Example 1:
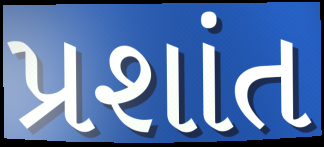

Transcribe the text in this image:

પ્રશાંત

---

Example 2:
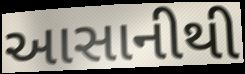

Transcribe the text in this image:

આસાનીથી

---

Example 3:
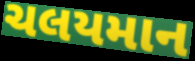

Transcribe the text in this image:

ચલયમાન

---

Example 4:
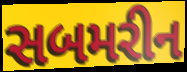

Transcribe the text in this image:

સબમરીન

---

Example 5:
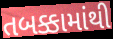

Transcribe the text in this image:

તબક્કામાંથી